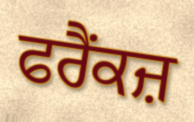
ਫਰੈਂਕਜ਼